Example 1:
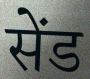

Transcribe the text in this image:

सेंड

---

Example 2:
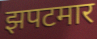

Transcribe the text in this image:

झपटमार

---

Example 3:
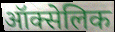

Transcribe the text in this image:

ऑक्सेलिक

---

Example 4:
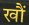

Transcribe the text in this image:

खौं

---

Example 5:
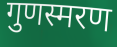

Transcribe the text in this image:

गुणस्मरण